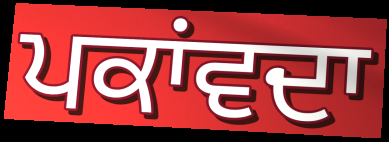
ਪਕਾਂਵਦਾ